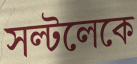
সল্টলেকে